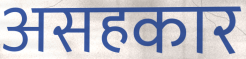
असहकार